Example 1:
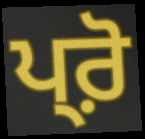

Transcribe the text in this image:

ਪ੍ਰ਼ੋ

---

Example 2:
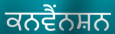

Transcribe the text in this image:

ਕਨਵੈਂਨਸ਼ਨ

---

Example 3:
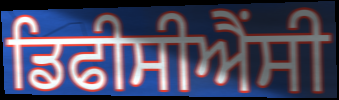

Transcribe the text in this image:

ਡਿਫੀਸੀਐਂਸੀ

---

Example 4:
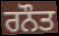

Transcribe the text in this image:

ਰਨੌਤ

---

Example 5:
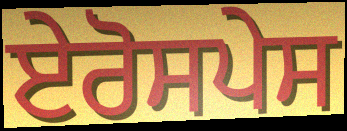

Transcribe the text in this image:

ਏਰੋਸਪੇਸ